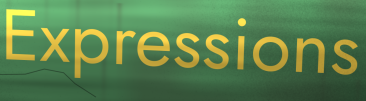
Expressions